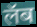
लॅब